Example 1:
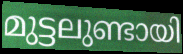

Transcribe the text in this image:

മുട്ടലുണ്ടായി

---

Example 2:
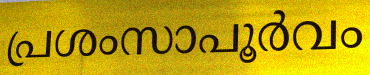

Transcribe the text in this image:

പ്രശംസാപൂർവം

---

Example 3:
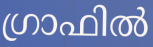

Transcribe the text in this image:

ഗ്രാഫിൽ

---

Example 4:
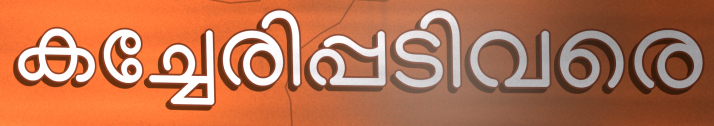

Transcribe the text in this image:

കച്ചേരിപ്പടിവരെ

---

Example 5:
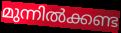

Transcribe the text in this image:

മുന്നിൽക്കണ്ട